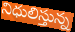
నిధులిస్తున్న